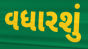
વધારશું